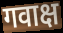
गवाक्ष